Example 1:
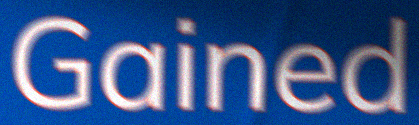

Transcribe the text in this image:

Gained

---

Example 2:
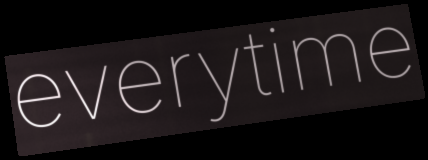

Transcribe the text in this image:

everytime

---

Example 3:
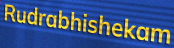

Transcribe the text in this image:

Rudrabhishekam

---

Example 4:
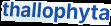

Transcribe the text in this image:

thallophyta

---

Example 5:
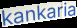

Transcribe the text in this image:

kankaria